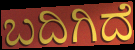
ಬದಿಗಿದೆ